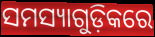
ସମସ୍ୟାଗୁଡ଼ିକରେ